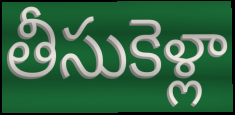
తీసుకెళ్లా